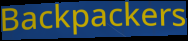
Backpackers